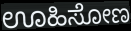
ಊಹಿಸೋಣ